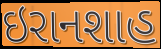
ઇરાનશાહ